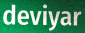
deviyar